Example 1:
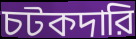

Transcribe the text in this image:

চটকদারি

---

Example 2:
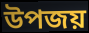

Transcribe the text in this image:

উপজয়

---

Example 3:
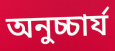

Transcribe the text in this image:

অনুচ্চার্য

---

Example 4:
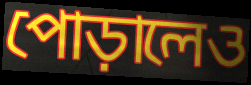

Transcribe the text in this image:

পোড়ালেও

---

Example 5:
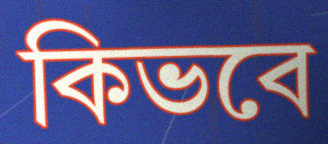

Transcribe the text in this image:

কিভবে